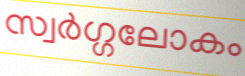
സ്വർഗ്ഗലോകം